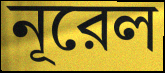
নূরেল